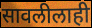
सावलीलाही